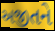
અજીતને